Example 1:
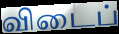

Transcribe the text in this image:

விடைப்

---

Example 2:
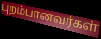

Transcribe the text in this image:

புறம்பானவர்கள்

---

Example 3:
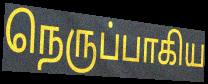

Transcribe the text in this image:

நெருப்பாகிய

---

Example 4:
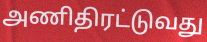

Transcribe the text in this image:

அணிதிரட்டுவது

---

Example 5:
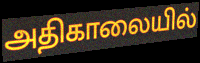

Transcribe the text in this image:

அதிகாலையில்